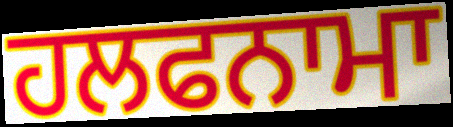
ਹਲਫਨਾਮਾ